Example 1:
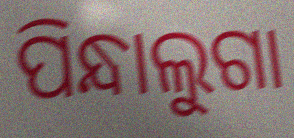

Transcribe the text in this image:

ପିନ୍ଧାଲୁଗା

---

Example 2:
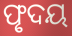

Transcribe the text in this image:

ଫୃଦୟ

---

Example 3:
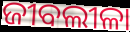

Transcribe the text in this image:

ଜୀବଲୀଳା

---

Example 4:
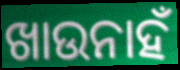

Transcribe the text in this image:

ଖାଉନାହଁ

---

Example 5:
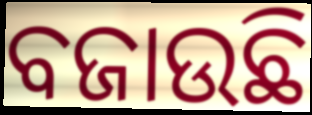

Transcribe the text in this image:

ବଜାଉଛି